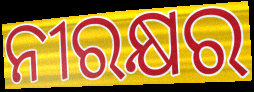
ନୀରକ୍ଷର